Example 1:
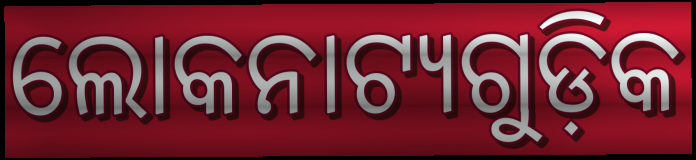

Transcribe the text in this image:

ଲୋକନାଟ୍ୟଗୁଡ଼ିକ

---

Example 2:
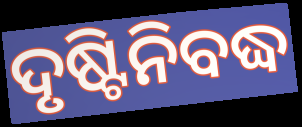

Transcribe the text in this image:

ଦୃଷ୍ଟିନିବଦ୍ଧ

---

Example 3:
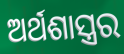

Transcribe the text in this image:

ଅର୍ଥଶାସ୍ତ୍ରର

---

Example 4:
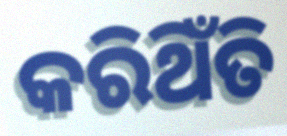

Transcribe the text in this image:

କରିଥିଁତି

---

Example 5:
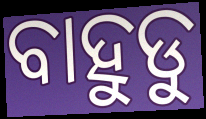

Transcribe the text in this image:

ବାହୁଡୁ